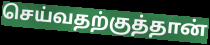
செய்வதற்குத்தான்